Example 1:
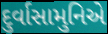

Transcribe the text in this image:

દુર્વાસામુનિએ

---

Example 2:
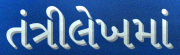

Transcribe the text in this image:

તંત્રીલેખમાં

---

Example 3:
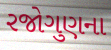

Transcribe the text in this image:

રજોગુણના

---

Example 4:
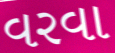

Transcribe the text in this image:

વરવા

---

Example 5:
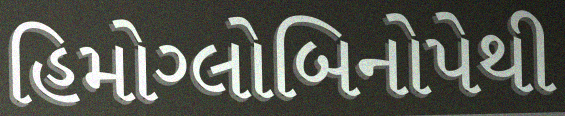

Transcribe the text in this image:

હિમોગ્લોબિનોપેથી